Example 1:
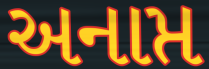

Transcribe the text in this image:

અનાપ્ત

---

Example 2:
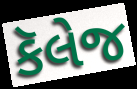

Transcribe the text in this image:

કૅલેજ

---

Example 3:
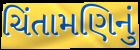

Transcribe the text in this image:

ચિંતામણિનું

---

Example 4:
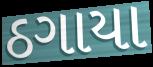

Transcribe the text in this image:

ઠગાયા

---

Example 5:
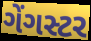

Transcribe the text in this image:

ગેંગસ્ટર